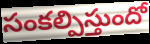
సంకల్పిస్తుందో